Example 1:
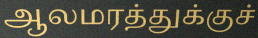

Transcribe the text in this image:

ஆலமரத்துக்குச்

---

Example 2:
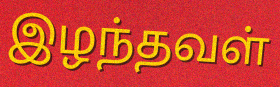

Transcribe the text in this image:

இழந்தவள்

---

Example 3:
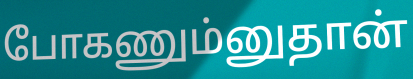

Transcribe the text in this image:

போகணும்னுதான்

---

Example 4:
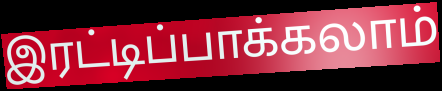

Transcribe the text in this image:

இரட்டிப்பாக்கலாம்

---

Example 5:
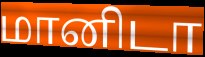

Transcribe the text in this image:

மானிடா